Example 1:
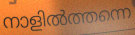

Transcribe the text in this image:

നാളിൽത്തന്നെ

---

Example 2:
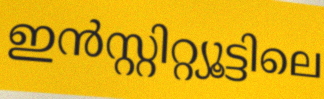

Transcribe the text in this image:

ഇൻസ്റ്റിറ്റ്യൂട്ടിലെ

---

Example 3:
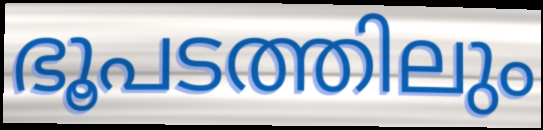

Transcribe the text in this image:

ഭൂപടത്തിലും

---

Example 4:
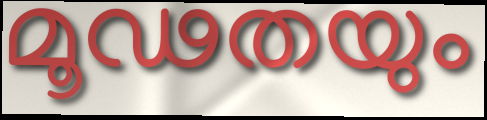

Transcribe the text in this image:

മൂഢതയും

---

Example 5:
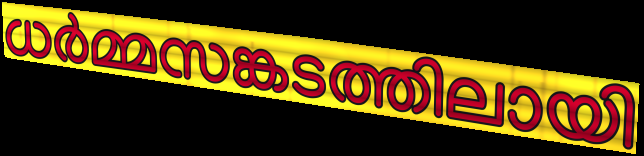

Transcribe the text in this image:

ധർമ്മസങ്കടത്തിലായി